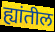
ह्यांतील